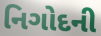
નિગોદની